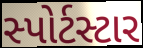
સ્પોર્ટસ્ટાર